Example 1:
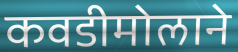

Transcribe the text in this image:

कवडीमोलाने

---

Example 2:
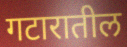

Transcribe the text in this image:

गटारातील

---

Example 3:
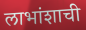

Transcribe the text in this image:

लाभांशाची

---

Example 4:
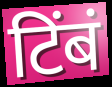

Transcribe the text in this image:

टिंबं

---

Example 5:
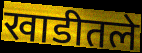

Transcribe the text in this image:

खाडीतले